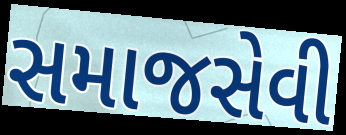
સમાજસેવી